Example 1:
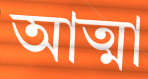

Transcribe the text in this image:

আত্মা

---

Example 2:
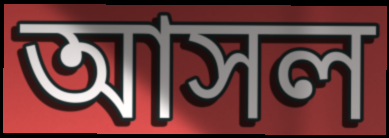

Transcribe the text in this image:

আসল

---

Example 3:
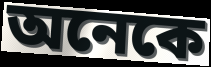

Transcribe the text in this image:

অনেকে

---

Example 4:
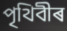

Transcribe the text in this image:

পৃথিবীৰ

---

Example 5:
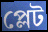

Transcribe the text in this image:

প্লেট